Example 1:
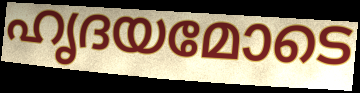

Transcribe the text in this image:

ഹൃദയമോടെ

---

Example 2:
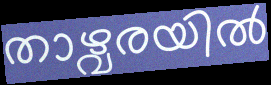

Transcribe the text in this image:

താഴ്വരയിൽ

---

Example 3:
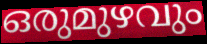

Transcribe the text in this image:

ഒരുമുഴവും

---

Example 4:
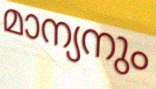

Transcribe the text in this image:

മാന്യനും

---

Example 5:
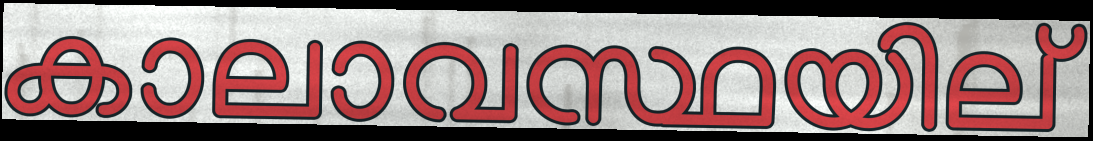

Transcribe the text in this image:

കാലാവസ്ഥയില്